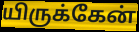
யிருக்கேன்